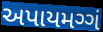
અપાયમગ્ગં